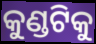
କୁଣ୍ଡଟିକୁ